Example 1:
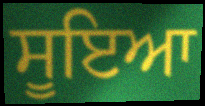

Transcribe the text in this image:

ਸੂਇਆ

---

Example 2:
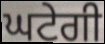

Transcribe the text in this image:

ਘਟੇਗੀ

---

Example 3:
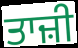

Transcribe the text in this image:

ਤਾਜ਼ੀ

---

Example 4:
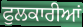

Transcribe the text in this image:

ਫੁਲਕਾਰੀਆਂ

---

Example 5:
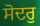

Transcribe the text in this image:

ਸੋਦਰੁ